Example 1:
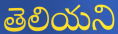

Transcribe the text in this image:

తెలియని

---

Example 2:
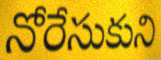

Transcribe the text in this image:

నోరేసుకుని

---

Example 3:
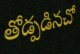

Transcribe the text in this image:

తోడ్పడినచో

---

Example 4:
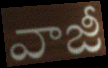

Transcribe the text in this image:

వాజీ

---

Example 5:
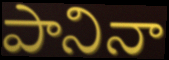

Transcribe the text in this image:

పానినా